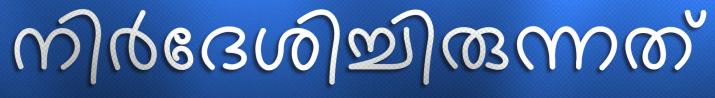
നിർദേശിച്ചിരുന്നത്